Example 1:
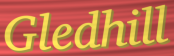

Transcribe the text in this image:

Gledhill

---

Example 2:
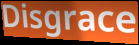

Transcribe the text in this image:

Disgrace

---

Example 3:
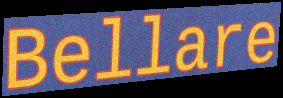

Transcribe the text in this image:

Bellare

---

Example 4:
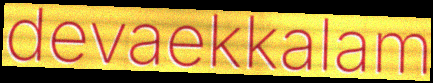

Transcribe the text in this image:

devaekkalam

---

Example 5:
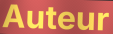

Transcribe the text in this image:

Auteur